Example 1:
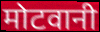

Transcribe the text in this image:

मोटवानी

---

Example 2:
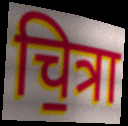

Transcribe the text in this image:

चि॒त्रा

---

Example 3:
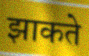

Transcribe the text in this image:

झाकते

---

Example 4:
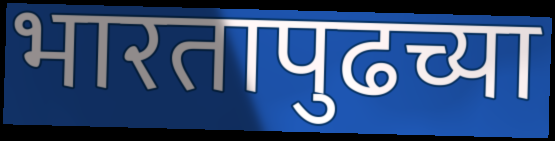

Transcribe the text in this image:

भारतापुढच्या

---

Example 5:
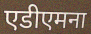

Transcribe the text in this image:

एडीएमना